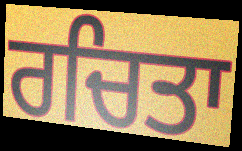
ਰਚਿਤਾ